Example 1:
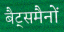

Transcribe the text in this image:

बैट्समैनों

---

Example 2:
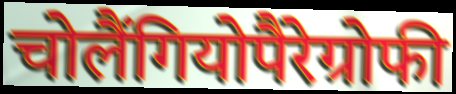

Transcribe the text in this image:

चोलैंगियोपैरेग्रोफी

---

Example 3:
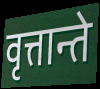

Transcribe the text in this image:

वृत्तान्ते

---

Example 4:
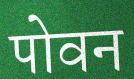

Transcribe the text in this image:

पोवन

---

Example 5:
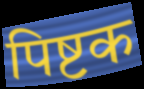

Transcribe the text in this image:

पिष्टक